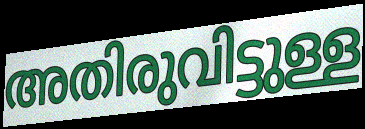
അതിരുവിട്ടുള്ള